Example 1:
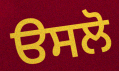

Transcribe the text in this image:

ੳਸਲੋ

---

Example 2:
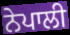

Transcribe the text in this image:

ਨੇਪਾਲੀ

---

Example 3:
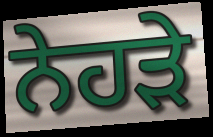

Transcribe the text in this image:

ਨੇਹੜੇ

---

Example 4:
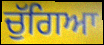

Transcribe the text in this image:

ਚੁੱਗਿਆ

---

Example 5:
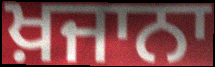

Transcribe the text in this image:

ਖ਼ਜਾਨਾ